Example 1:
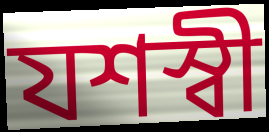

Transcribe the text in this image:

যশস্বী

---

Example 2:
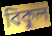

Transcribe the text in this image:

বিকুল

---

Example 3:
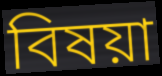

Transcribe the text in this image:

বিষয়া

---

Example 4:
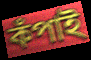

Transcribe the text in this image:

কঁপাই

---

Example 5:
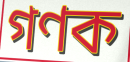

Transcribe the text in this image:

গণক